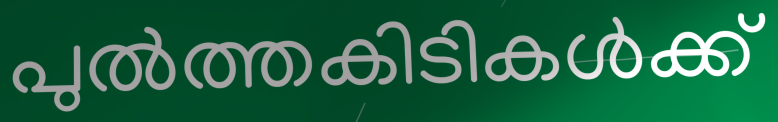
പുൽത്തകിടികൾക്ക്